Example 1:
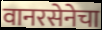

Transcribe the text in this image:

वानरसेनेचा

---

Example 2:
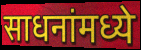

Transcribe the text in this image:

साधनांमध्ये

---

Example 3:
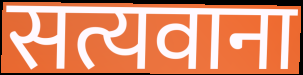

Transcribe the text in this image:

सत्यवाना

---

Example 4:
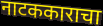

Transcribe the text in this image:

नाटककाराचा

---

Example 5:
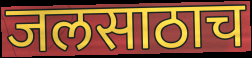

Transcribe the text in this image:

जलसाठाच